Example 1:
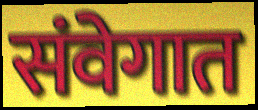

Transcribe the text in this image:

संवेगात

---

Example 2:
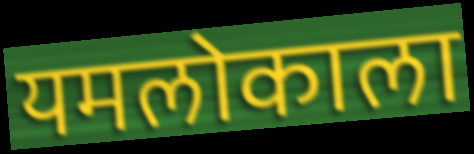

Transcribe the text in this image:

यमलोकाला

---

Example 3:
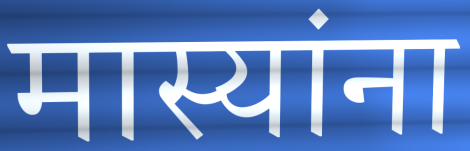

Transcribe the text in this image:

मास्यांना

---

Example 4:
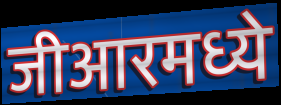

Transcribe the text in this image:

जीआरमध्ये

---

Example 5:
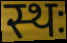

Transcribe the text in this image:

स्थः